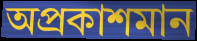
অপ্রকাশমান